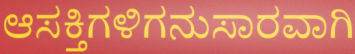
ಆಸಕ್ತಿಗಳಿಗನುಸಾರವಾಗಿ